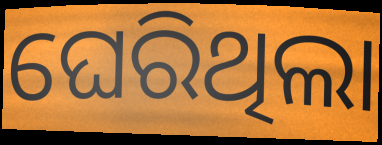
ଘେରିଥିଲା